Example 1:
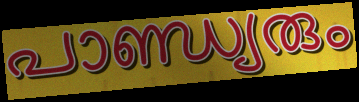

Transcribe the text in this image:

പാണ്ഡ്യരും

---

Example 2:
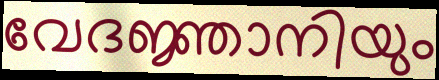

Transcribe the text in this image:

വേദജ്ഞാനിയും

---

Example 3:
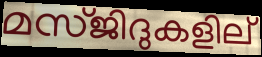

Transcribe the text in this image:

മസ്ജിദുകളില്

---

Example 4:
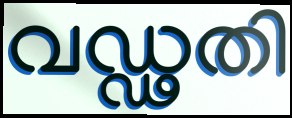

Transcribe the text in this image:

വഡ്ഢതി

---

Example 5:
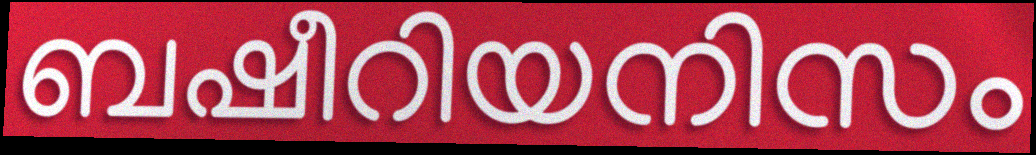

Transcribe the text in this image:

ബഷീറിയനിസം